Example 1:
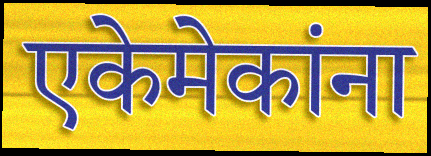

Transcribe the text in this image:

एकेमेकांना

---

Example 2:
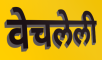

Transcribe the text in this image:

वेचलेली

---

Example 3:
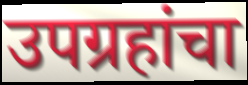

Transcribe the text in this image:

उपग्रहांचा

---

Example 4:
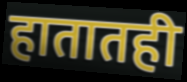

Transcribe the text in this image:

हातातही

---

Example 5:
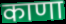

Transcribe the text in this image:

काणा